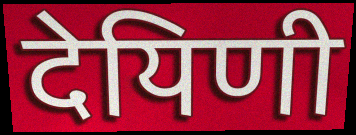
देयिणी